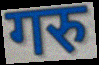
गरु